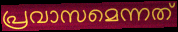
പ്രവാസമെന്നത്